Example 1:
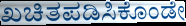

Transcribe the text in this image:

ಖಚಿತಪಡಿಸಿಕೊಂಡೇ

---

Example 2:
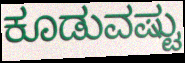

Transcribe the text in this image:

ಕೂಡುವಷ್ಟು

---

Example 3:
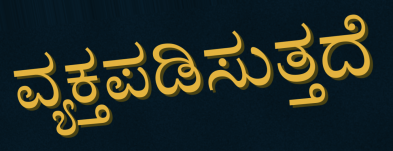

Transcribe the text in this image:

ವ್ಯಕ್ತಪಡಿಸುತ್ತದೆ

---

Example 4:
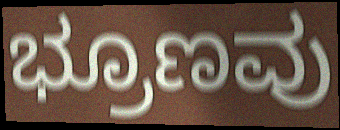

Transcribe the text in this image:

ಭ್ರೂಣವು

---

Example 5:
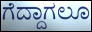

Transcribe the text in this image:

ಗೆದ್ದಾಗಲೂ